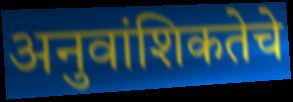
अनुवांशिकतेचे